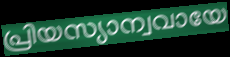
പ്രിയസ്യാന്വവായേ